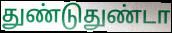
துண்டுதுண்டா